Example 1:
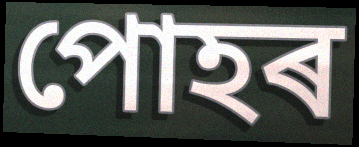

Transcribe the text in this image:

পোহৰ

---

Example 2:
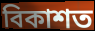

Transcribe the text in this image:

বিকাশত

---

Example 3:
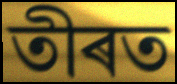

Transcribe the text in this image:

তীৰত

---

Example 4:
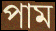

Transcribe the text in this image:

পাম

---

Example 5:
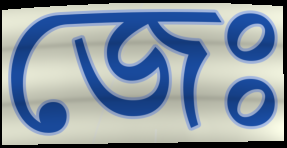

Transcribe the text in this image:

জেঃ